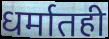
धर्मातही